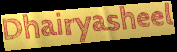
Dhairyasheel